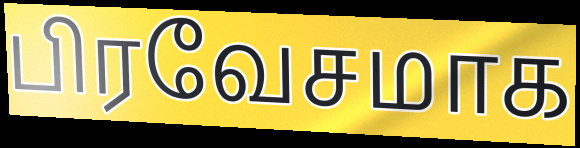
பிரவேசமாக